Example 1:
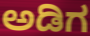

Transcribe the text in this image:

ಅಡಿಗ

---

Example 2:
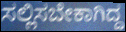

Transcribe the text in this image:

ಸಲ್ಲಿಸಬೇಕಾಗಿದ್ದ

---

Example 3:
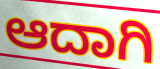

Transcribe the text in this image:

ಆದಾಗಿ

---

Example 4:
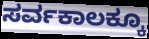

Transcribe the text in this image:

ಸರ್ವಕಾಲಕ್ಕೂ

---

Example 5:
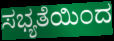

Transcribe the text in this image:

ಸಭ್ಯತೆಯಿಂದ